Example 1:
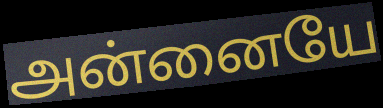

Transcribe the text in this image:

அன்னையே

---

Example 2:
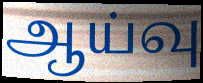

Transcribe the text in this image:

ஆய்வு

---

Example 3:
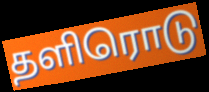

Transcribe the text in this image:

தளிரொடு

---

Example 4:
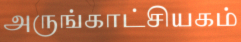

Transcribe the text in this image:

அருங்காட்சியகம்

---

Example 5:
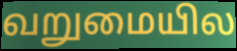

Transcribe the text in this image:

வறுமையில